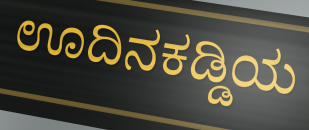
ಊದಿನಕಡ್ಡಿಯ